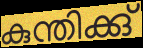
കുന്തിക്കു്